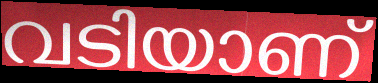
വടിയാണ്